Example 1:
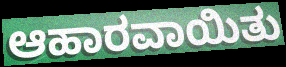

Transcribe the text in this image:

ಆಹಾರವಾಯಿತು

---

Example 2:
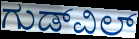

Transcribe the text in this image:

ಗುಡ್‌ವಿಲ್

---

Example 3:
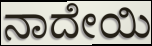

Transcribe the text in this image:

ನಾದೇಯಿ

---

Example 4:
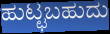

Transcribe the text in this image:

ಹುಟ್ಟಬಹುದು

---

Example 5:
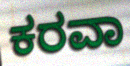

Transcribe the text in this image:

ಕರವಾ